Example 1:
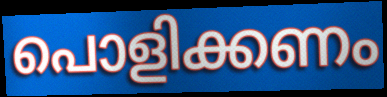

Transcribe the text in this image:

പൊളിക്കണം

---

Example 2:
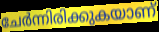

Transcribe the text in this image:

ചേർന്നിരിക്കുകയാണ്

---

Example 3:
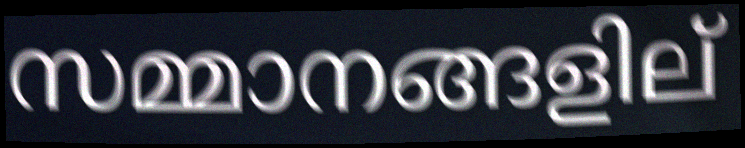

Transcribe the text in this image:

സമ്മാനങ്ങളില്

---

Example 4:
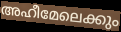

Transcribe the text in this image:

അഹീമേലെക്കും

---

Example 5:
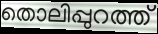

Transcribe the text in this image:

തൊലിപ്പുറത്ത്